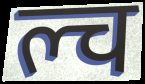
ल्च